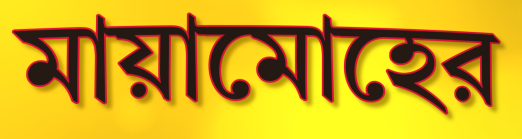
মায়ামোহের